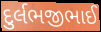
દુર્લભજીભાઈ